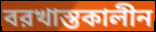
বরখাস্তকালীন